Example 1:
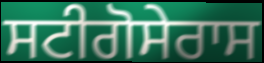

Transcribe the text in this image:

ਸਟੀਗੋਸੇਰਾਸ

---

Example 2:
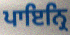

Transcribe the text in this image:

ਪਾਇਨ੍ਰਿ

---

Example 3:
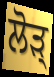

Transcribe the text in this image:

ਲੋੜ੍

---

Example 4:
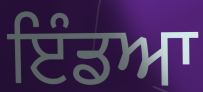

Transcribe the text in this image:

ਇੰਡਆ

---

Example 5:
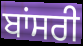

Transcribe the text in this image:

ਬਾਂਸਰੀ